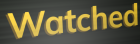
Watched